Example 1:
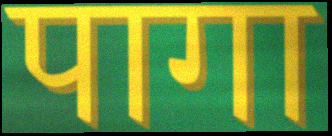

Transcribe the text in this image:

पागा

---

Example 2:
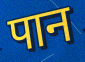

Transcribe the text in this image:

पान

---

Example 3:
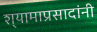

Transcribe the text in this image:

श्यामाप्रसादांनी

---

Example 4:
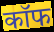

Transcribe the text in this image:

कॉफ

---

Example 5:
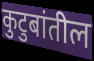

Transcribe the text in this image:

कुटुबांतील